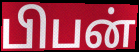
பிபன்